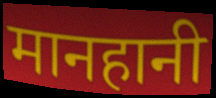
मानहानी